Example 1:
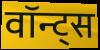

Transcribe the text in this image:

वॉन्ट्स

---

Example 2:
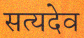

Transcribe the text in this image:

सत्‍यदेव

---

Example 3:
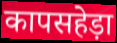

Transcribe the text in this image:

कापसहेड़ा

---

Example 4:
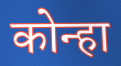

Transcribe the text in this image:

कोन्हा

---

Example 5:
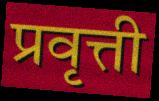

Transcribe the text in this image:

प्रवृत्ती